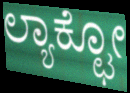
ಲ್ಯಾಕ್ಟೋ